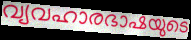
വ്യവഹാരഭാഷയുടെ